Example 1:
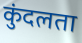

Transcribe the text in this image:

कुंदलता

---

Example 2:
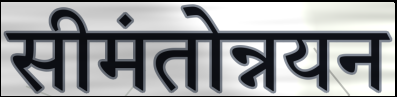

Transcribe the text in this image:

सीमंतोन्नयन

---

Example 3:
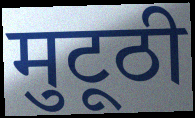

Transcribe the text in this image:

मुटूठी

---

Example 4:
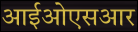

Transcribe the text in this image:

आईओएसआर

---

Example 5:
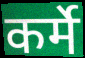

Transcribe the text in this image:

कर्मे